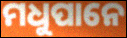
ମଧୁପାନେ